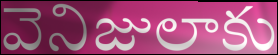
వెనిజులాకు